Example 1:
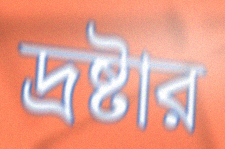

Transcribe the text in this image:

দ্রষ্টার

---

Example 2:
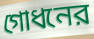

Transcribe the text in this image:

গোধনের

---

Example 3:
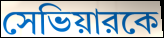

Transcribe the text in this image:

সেভিয়ারকে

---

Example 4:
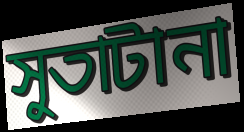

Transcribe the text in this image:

সুতাটানা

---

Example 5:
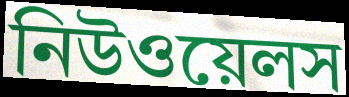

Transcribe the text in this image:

নিউওয়েলস